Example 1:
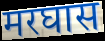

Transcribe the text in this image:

मरघास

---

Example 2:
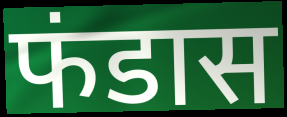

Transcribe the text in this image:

फंडास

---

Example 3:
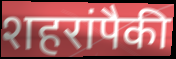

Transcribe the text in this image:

शहरांपैकी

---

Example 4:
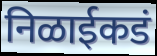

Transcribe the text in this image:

निळाईकडं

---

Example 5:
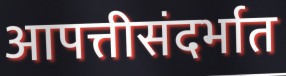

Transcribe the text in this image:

आपत्तीसंदर्भात